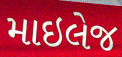
માઇલેજ